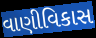
વાણીવિકાસ